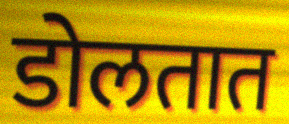
डोलतात